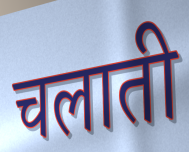
चलाती